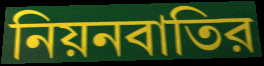
নিয়নবাতির